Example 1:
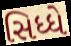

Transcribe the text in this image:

સિધ્ધે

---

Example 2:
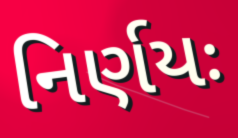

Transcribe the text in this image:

નિર્ણયઃ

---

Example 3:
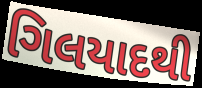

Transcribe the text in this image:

ગિલયાદથી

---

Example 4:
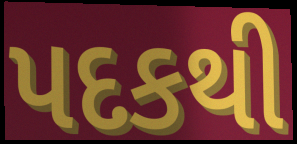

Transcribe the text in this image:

પદકથી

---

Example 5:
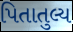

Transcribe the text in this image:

પિતાતુલ્ય